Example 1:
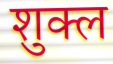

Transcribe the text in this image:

शुक्ल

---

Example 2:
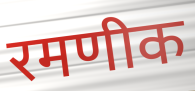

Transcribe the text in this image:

रमणीक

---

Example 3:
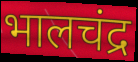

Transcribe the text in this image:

भालचंद्र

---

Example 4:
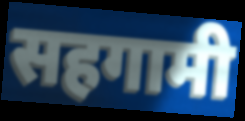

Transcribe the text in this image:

सहगामी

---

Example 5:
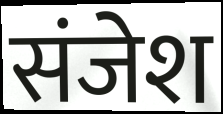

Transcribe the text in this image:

संजेश